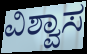
ವಿಶ್ವಾಸ